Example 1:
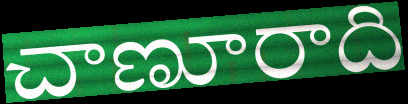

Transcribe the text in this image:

చాణూరాది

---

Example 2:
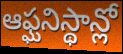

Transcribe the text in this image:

ఆఫ్ఘనిస్థాన్లో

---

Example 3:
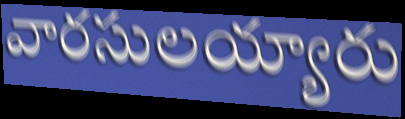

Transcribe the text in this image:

వారసులయ్యారు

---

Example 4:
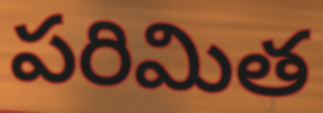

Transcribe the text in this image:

పరిమిత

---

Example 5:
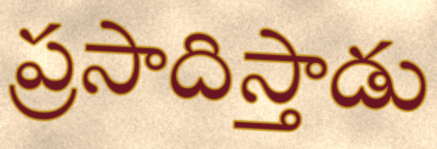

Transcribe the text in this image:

ప్రసాదిస్తాడు